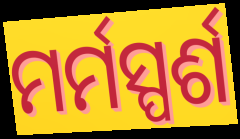
ମର୍ମସ୍ପର୍ଶ